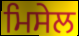
ਮਿਸੇਲ